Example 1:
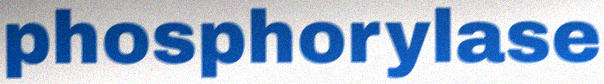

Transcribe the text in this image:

phosphorylase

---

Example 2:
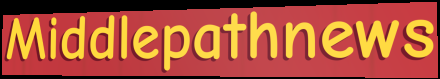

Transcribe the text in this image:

Middlepathnews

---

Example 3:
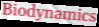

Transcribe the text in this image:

Biodynamics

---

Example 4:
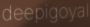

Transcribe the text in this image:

deepigoyal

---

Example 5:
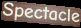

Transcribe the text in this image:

Spectacle